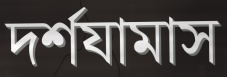
দর্শযামাস